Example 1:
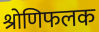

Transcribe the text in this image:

श्रोणिफलक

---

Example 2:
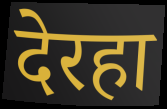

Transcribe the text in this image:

देरहा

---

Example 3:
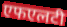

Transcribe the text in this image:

एफएलटी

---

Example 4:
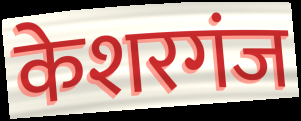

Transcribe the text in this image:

केशरगंज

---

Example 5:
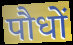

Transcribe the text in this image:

पौधों